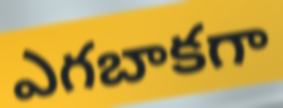
ఎగబాకగా